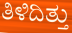
ತಿಳಿದಿತ್ತು